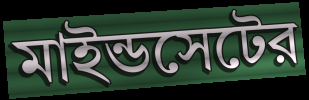
মাইন্ডসেটের